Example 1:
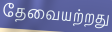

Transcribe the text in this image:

தேவையற்றது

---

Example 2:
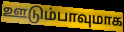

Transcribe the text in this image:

ஊடும்பாவுமாக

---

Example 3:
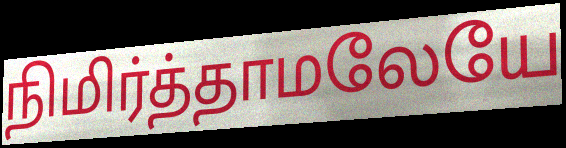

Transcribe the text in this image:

நிமிர்த்தாமலேயே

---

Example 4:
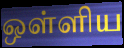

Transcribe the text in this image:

ஒள்ளிய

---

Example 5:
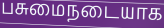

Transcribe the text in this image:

பசுமைநடையாக